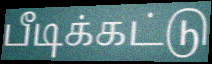
பீடிக்கட்டு